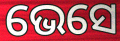
ଭେସେ